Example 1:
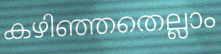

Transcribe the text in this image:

കഴിഞ്ഞതെല്ലാം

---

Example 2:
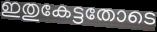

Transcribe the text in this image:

ഇതുകേട്ടതോടെ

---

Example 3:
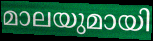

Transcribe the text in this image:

മാലയുമായി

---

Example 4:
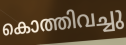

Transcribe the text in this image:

കൊത്തിവച്ചു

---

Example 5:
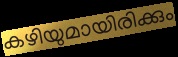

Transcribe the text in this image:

കഴിയുമായിരിക്കും